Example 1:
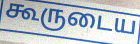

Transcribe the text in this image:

கூருடைய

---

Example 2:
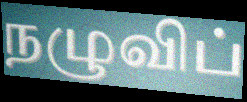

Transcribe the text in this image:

நழுவிப்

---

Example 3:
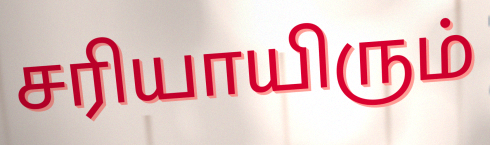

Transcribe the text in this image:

சரியாயிரும்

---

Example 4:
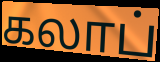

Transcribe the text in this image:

கலாப்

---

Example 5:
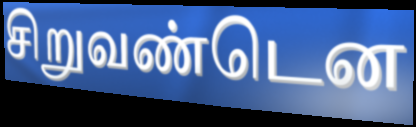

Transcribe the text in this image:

சிறுவண்டென